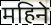
महिने